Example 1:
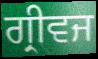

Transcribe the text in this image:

ਗ੍ਰੀਵਜ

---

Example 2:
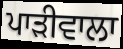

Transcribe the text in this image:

ਪਾੜੀਵਾਲਾ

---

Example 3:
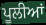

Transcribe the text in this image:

ਪੂਲੀਆਂ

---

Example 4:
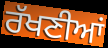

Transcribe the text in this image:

ਰੱਖਣੀਆਂ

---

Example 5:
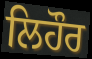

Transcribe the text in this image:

ਲਿਹੌਰ